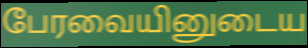
பேரவையினுடைய